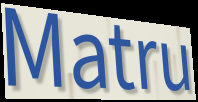
Matru